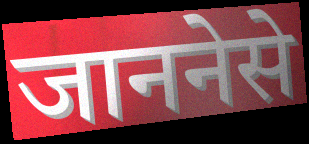
जाननेसे